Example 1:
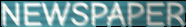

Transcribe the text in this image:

NEWSPAPER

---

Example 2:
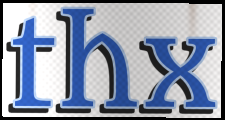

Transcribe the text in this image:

thx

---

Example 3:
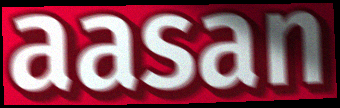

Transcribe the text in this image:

aasan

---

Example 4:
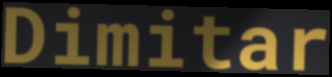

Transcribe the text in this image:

Dimitar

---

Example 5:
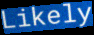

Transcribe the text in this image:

Likely